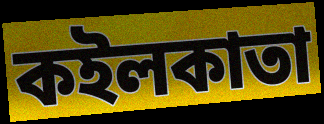
কইলকাতা